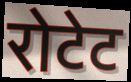
रोटेट